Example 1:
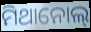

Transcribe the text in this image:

ମିଥାନୋଲ୍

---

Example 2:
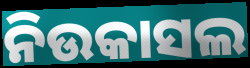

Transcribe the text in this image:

ନିଉକାସଲ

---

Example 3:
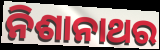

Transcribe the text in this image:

ନିଶାନାଥର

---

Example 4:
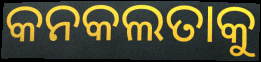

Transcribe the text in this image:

କନକଲତାକୁ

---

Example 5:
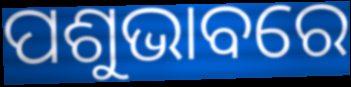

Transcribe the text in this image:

ପଶୁଭାବରେ